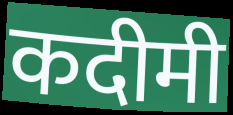
कदीमी